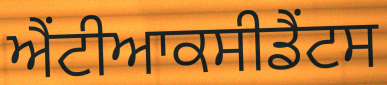
ਐਂਟੀਆਕਸੀਡੈਂਟਸ